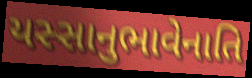
યસ્સાનુભાવેનાતિ